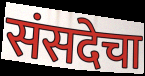
संसदेचा